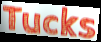
Tucks